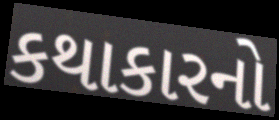
કથાકારનો